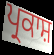
ਪ੍ਰਕਾਸ਼